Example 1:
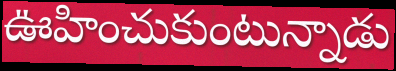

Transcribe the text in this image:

ఊహించుకుంటున్నాడు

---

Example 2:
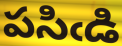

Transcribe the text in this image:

పసిఁడి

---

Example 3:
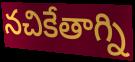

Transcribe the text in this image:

నచికేతాగ్ని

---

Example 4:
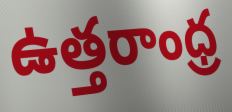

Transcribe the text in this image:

ఉత్తరాంధ్ర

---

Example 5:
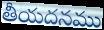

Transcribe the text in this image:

తీయదనము